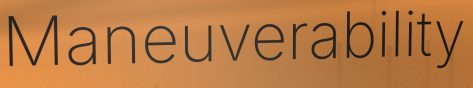
Maneuverability